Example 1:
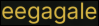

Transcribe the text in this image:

eegagale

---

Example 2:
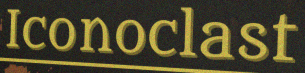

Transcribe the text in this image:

Iconoclast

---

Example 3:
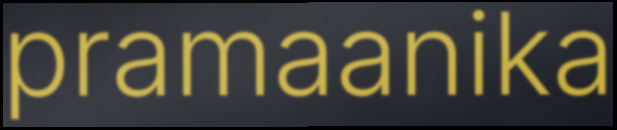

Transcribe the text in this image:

pramaanika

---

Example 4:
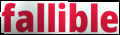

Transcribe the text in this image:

fallible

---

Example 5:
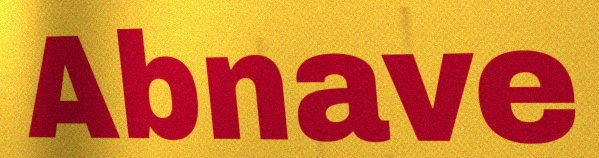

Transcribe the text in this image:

Abnave